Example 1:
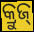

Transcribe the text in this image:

କ୍ରୁଜ୍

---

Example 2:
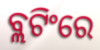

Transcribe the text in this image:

ବ୍ଲଟିଂରେ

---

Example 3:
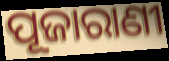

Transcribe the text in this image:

ପୂଜାରାଣୀ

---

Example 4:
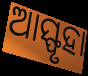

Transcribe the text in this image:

ଆସ୍ଫୃହା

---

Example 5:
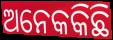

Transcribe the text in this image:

ଅନେକକିଛି